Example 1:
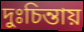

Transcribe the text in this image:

দুঃচিন্তায়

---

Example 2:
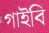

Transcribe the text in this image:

গাইবি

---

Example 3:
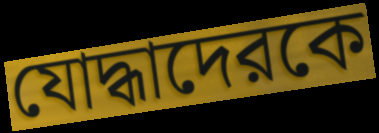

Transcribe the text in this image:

যোদ্ধাদেরকে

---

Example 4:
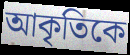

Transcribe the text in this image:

আকৃতিকে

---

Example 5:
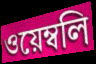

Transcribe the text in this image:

ওয়েম্বলি